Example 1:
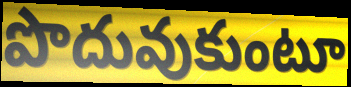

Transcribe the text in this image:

పొదువుకుంటూ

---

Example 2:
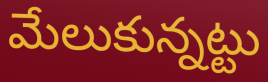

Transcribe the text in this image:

మేలుకున్నట్టు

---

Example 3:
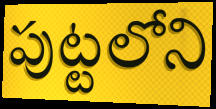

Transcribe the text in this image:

పుట్టలోని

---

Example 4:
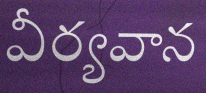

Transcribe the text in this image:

వీర్యవాన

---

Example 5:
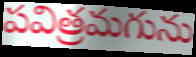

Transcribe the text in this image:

పవిత్రమగును